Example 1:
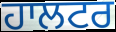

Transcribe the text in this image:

ਹਾਲਟਰ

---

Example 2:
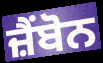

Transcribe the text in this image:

ਜ਼ੈਂਬੋਨ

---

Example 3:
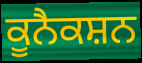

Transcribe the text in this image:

ਕੂਨੈਕਸ਼ਨ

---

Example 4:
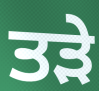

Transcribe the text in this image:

ਤੜੇ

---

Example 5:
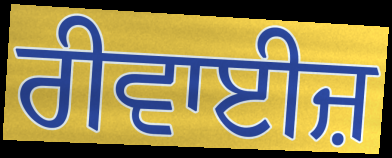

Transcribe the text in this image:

ਰੀਵਾਈਜ਼